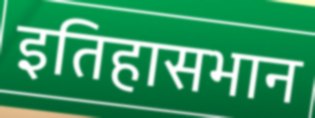
इतिहासभान